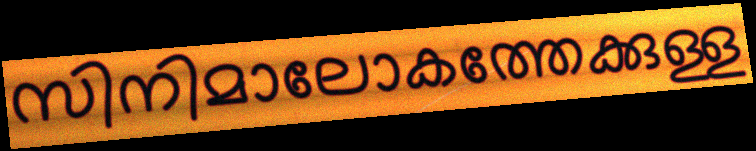
സിനിമാലോകത്തേക്കുള്ള